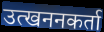
उत्खननकर्ता